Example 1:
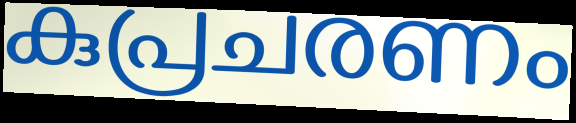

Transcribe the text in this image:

കുപ്രചരണം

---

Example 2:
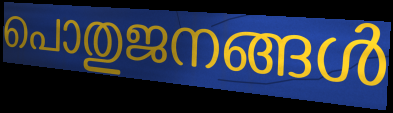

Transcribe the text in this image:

പൊതുജനങ്ങൾ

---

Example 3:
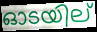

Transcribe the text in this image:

ഓടയില്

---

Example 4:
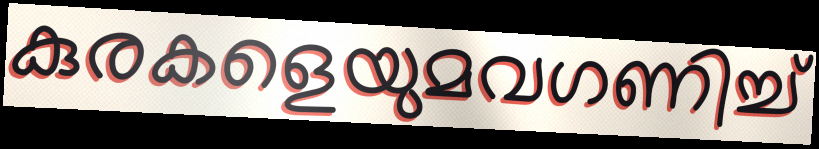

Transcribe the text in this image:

കുരകളെയുമവഗണിച്ച്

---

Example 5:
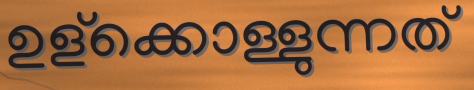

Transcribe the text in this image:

ഉള്ക്കൊള്ളുന്നത്